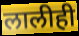
लालीही